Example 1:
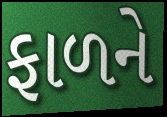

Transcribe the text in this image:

ફાળને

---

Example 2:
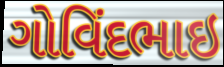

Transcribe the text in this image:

ગોવિંદભાઇ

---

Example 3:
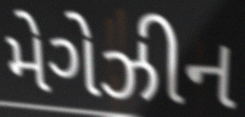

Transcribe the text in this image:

મેગેઝીન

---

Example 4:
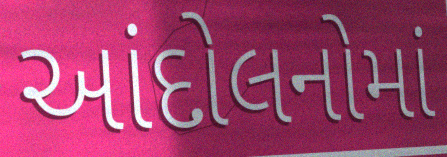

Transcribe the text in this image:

આંદોલનોમાં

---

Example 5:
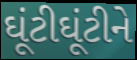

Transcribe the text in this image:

ઘૂંટીઘૂંટીને